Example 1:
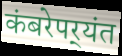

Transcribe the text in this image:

कंबरेपर्यंत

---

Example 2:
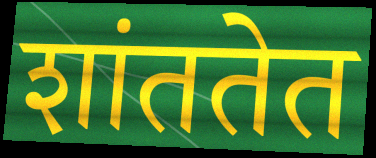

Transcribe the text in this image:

शांततेत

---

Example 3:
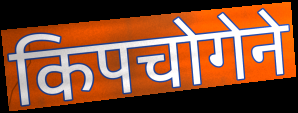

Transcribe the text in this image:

किपचोगेने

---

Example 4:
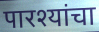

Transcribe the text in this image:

पारश्यांचा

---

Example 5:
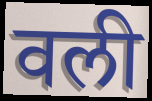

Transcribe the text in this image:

वली